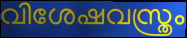
വിശേഷവസ്ത്രം